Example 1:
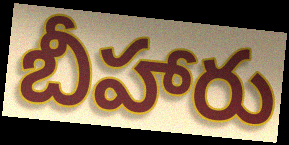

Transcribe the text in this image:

బీహారు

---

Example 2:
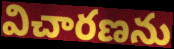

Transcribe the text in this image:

విచారణను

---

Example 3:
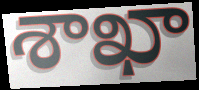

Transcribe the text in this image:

శాఖా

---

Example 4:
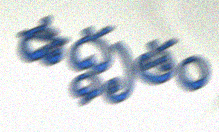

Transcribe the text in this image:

ఉద్ధృతం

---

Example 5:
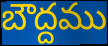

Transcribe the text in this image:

బౌద్దము